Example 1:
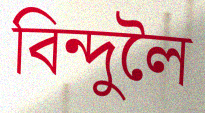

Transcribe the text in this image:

বিন্দুলৈ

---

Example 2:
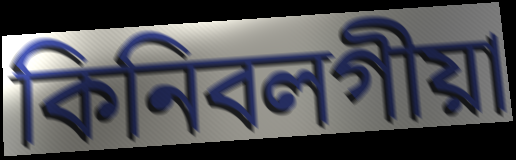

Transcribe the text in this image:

কিনিবলগীয়া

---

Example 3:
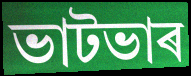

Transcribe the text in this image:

ভাটভাৰ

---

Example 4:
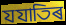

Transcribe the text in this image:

যযাতিৰ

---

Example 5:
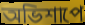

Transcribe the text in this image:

অভিশাপে